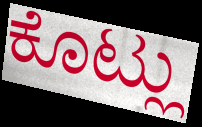
ಕೊಟ್ಲು